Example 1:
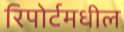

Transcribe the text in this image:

रिपोर्टमधील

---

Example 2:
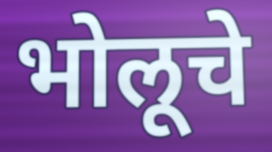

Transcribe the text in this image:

भोलूचे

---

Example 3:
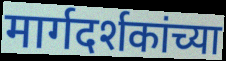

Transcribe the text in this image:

मार्गदर्शकांच्या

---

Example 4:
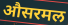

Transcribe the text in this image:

औसरमल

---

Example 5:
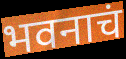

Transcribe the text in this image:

भवनाचं